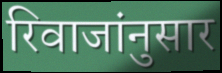
रिवाजांनुसार